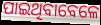
ପାଇଥିବାବେଳେ